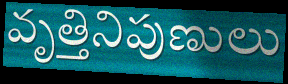
వృత్తినిపుణులు